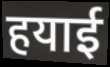
हयाई